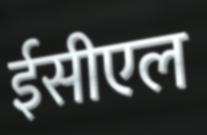
ईसीएल